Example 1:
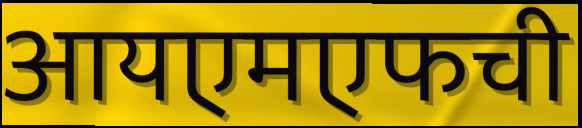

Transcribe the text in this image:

आयएमएफची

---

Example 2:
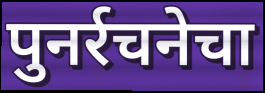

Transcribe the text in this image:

पुनर्रचनेचा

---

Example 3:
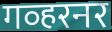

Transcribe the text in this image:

गव्हरनर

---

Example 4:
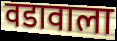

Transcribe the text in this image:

वडावाला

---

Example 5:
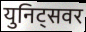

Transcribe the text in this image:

युनिट्सवर